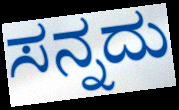
ಸನ್ನದು